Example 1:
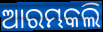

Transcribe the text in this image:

ଆରମ୍ଭକଲି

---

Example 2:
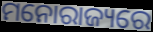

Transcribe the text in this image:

ମନୋରାଜ୍ୟରେ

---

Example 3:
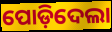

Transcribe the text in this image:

ପୋଡ଼ିଦେଲା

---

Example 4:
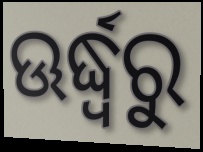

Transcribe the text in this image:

ଊର୍ଦ୍ଧ୍ଵରୁ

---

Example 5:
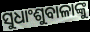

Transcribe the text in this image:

ସୁଧାଂଶୁବାଳାଙ୍କୁ